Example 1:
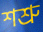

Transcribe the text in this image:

শশ্রু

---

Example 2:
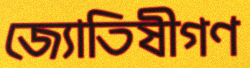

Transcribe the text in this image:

জ্যোতিষীগণ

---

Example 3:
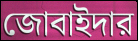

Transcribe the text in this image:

জোবাইদার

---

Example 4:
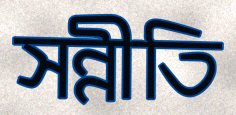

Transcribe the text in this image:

সন্নীতি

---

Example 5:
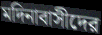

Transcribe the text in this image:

মদিনাবাসীদের